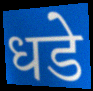
धडे